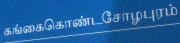
கங்கைகொண்டசோழபுரம்